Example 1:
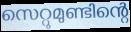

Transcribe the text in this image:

സെറ്റുമുണ്ടിന്റെ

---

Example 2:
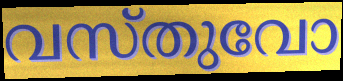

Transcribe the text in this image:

വസ്തുവോ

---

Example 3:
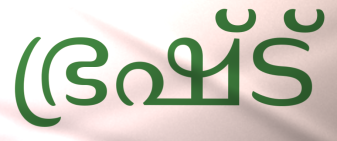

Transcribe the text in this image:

ഭ്രഷ്ട്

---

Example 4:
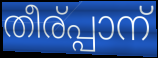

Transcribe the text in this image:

തീര്പ്പാന്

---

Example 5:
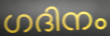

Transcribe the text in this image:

ഗദിനം